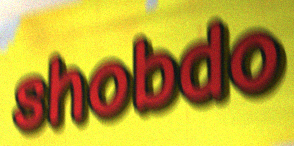
shobdo